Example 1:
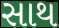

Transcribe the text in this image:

સાથ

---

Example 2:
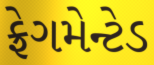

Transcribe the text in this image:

ફ્રેગમેન્ટેડ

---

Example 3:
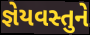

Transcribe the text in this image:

જ્ઞેયવસ્તુને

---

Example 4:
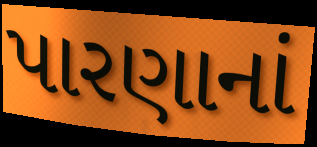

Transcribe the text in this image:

પારણાનાં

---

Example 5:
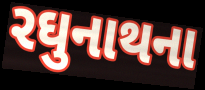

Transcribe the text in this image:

રઘુનાથના